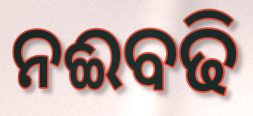
ନଈବଢି